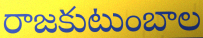
రాజకుటుంబాల